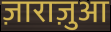
ज़ाराज़ुआ